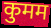
कुमम